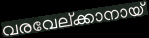
വരവേല്ക്കാനായ്